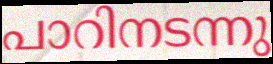
പാറിനടന്നു